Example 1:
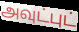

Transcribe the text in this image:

அவுட்புட்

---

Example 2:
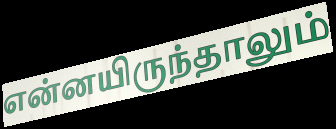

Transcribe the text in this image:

என்னயிருந்தாலும்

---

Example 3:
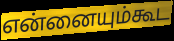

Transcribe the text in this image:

என்னையும்கூட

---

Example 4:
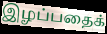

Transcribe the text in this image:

இழப்பதைக்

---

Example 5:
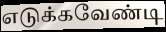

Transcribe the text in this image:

எடுக்கவேண்டி